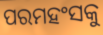
ପରମହଂସକୁ